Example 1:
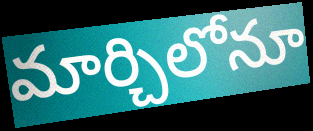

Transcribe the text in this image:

మార్చిలోనూ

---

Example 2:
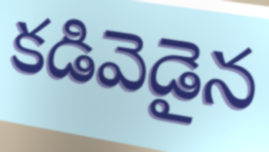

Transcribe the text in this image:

కడివెడైన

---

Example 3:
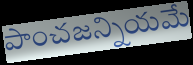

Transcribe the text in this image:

పాంచజన్నియమే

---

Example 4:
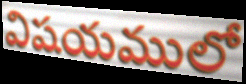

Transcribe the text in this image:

విషయములో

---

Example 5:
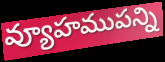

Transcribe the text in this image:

వ్యూహముపన్ని